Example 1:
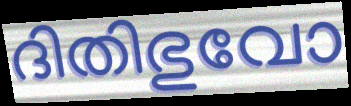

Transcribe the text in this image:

ദിതിഭുവോ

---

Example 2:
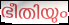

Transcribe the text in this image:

ഭീതിയും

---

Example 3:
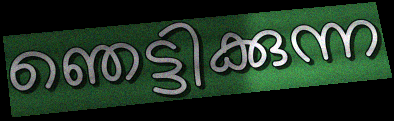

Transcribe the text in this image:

ഞെട്ടിക്കുന്ന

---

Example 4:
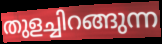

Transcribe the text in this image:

തുളച്ചിറങ്ങുന്ന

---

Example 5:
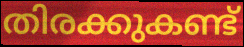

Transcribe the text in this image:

തിരക്കുകണ്ട്